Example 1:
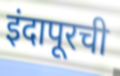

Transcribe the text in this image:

इंदापूरची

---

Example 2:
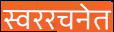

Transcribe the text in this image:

स्वररचनेत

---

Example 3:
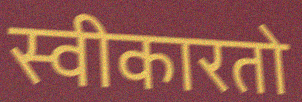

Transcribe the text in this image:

स्वीकारतो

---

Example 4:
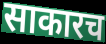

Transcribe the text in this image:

साकारच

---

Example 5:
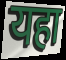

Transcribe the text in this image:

यहा